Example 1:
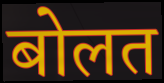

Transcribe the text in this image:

बोलत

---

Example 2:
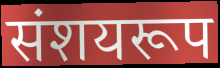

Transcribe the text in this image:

संशयरूप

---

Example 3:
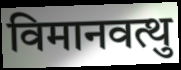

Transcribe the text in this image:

विमानवत्थु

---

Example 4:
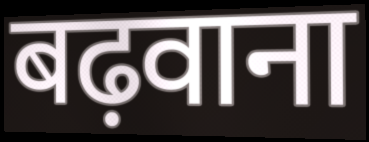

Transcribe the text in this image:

बढ़वाना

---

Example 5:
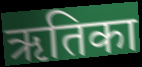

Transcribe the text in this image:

ऋतिका